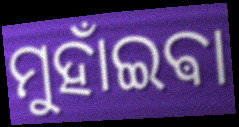
ମୁହାଁଇଵା